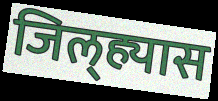
जिल्ह्यास